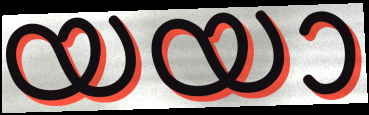
യയാ